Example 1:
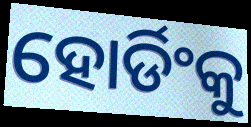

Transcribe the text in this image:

ହୋର୍ଡିଂକୁ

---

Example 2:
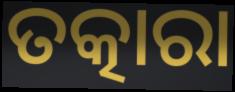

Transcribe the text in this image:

ତତ୍କାରା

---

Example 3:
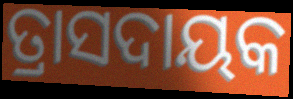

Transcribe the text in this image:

ତ୍ରାସଦାୟକ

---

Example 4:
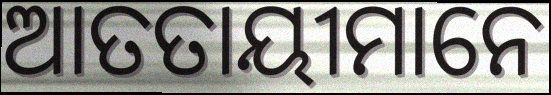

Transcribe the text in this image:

ଆତତାୟୀମାନେ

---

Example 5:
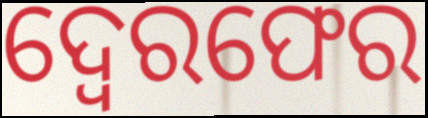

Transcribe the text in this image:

ଦ୍ବେରଫେର